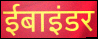
ईबाइंडर